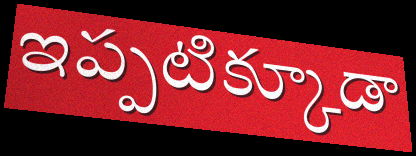
ఇప్పటిక్కూడా